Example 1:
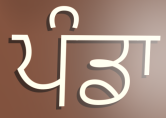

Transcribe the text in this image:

ਪੰਡਾ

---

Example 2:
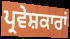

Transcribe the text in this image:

ਪ੍ਰਵੇਸ਼ਕਾਰਾਂ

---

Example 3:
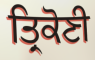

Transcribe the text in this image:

ਤ੍ਰਿਕੋਣੀ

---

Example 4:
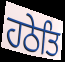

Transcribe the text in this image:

ਹਠੇਤਿ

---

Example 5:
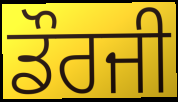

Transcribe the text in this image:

ਡੌਰਜੀ